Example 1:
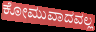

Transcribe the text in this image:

ಕೋಮುವಾದವಲ್ಲ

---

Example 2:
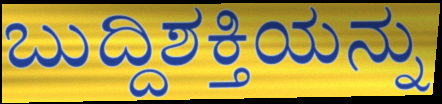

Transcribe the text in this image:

ಬುದ್ದಿಶಕ್ತಿಯನ್ನು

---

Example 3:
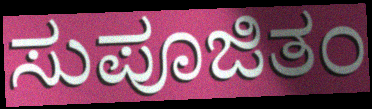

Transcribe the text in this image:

ಸುಪೂಜಿತಂ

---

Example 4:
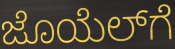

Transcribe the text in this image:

ಜೊಯೆಲ್‌ಗೆ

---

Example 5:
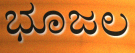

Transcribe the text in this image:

ಭೂಜಲ